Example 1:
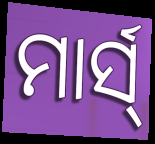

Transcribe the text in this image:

ମାର୍ସ୍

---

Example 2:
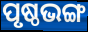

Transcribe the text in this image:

ପୃଷ୍ଠଭଙ୍ଗ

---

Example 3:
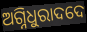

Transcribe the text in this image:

ଅଗ୍ନିଧୁରାଦଦେ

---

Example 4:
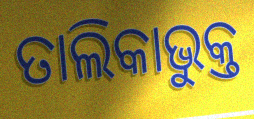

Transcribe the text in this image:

ତାଲିକାଭୁକ୍ତ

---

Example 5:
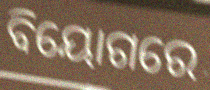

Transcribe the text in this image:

ବିୟୋଗରେ